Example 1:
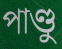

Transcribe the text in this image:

পাণ্ডু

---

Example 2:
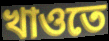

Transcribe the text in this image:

খাওতে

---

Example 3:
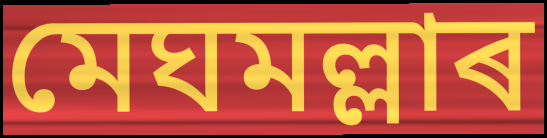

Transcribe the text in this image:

মেঘমল্লাৰ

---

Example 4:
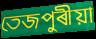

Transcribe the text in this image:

তেজপুৰীয়া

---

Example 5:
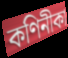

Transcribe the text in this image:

কণিনীকা